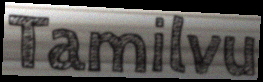
Tamilvu